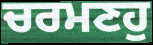
ਚਰਮਣਹੁ